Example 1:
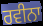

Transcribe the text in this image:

ਰਵੀਨਾ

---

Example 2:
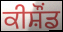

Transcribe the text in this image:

ਕੀਸ਼ੌਂਡ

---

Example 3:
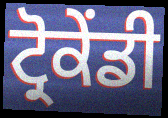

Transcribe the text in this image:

ਟ੍ਰੋਕੇਂਡੀ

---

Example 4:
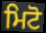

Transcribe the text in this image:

ਮਿਟੋ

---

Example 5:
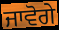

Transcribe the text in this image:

ਜਾਵੋਗੇ